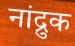
नांद्रुक